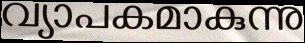
വ്യാപകമാകുന്നു